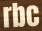
rbc